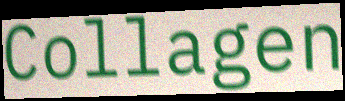
Collagen